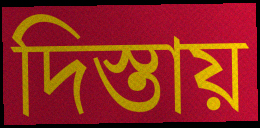
দিস্তায়